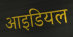
आइडियल